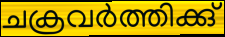
ചക്രവർത്തിക്കു്